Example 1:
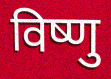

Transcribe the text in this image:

विष्‍णु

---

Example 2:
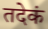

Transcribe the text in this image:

तदेकं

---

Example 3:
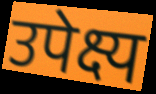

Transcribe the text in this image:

उपेक्ष्य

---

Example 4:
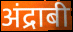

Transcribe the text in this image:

अंद्राबी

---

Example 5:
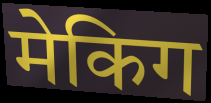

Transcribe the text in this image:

मेकिग